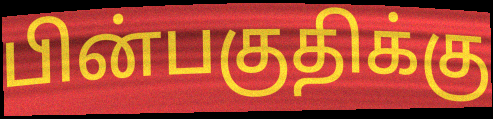
பின்பகுதிக்கு